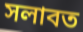
সলাবত